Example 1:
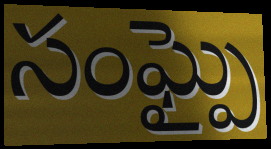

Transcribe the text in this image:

సంఘ్పై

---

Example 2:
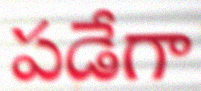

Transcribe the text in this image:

పడేగా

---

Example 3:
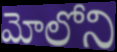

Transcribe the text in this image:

మోలోని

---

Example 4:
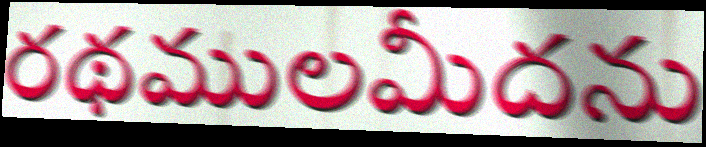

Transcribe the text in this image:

రథములమీదను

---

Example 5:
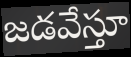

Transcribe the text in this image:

జడవేస్తూ